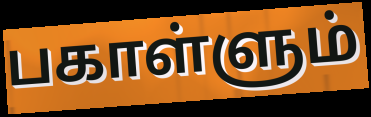
பகாள்ளும்